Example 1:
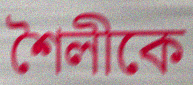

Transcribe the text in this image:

শৈলীকে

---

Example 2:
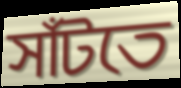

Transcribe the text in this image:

সাঁটতে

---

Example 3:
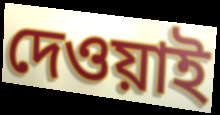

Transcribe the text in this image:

দেওয়াই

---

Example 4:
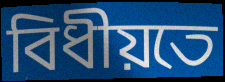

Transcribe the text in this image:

বিধীয়তে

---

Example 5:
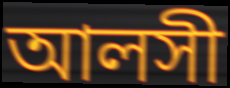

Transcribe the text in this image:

আলসী